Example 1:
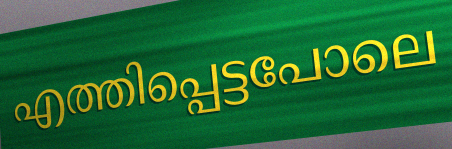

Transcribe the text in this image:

എത്തിപ്പെട്ടപോലെ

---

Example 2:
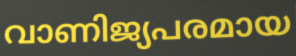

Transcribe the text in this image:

വാണിജ്യപരമായ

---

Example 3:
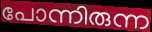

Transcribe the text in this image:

പോന്നിരുന്ന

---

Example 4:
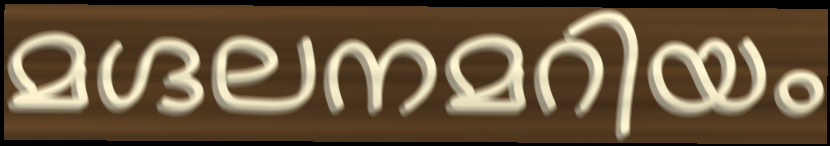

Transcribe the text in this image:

മഗ്ദലനമറിയം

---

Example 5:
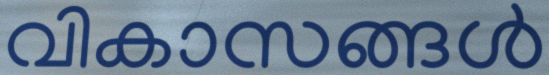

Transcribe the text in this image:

വികാസങ്ങൾ